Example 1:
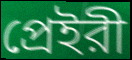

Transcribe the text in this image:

প্রেইরী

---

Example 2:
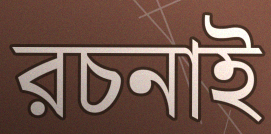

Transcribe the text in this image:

রচনাই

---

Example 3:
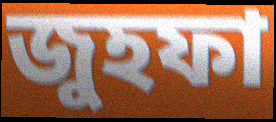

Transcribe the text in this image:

জুহফা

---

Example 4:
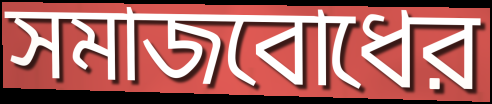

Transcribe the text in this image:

সমাজবোধের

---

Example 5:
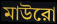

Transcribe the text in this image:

মাউরো